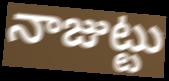
నాజుట్టు